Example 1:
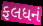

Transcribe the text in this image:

ફલધનં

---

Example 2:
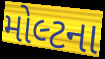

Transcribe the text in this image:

મોલ્ટના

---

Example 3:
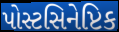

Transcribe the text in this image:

પોસ્ટસિનેપ્ટિક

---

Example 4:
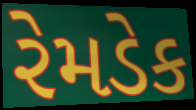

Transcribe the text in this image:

રેમડેક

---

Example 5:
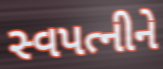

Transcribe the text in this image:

સ્વપત્નીને